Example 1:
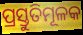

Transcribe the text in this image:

ପ୍ରସ୍ତୁତିମୂଳକ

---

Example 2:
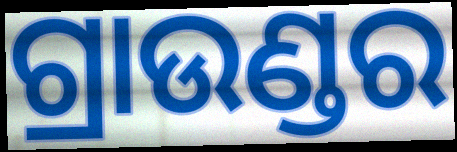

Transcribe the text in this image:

ଗ୍ରାଉଣ୍ଡର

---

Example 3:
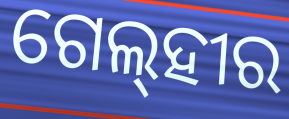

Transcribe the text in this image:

ଗେଲ୍‌ହୀର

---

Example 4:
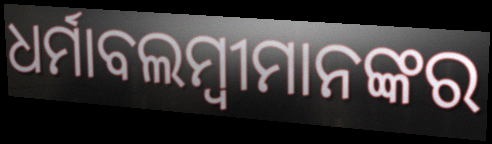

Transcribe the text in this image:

ଧର୍ମାବଲମ୍ବୀମାନଙ୍କର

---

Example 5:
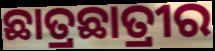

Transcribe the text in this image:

ଛାତ୍ରଛାତ୍ରୀର